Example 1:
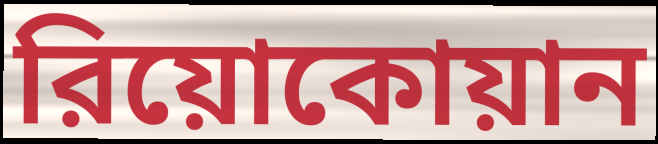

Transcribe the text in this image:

রিয়োকোয়ান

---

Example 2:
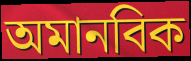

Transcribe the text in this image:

অমানবিক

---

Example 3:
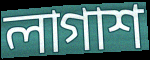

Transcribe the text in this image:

লাগাশ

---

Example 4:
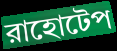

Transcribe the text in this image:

রাহোটেপ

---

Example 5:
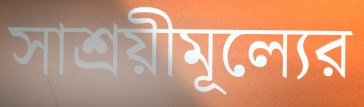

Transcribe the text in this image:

সাশ্রয়ীমূল্যের